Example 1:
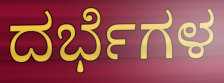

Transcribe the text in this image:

ದರ್ಭೆಗಳ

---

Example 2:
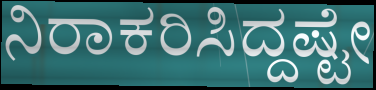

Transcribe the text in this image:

ನಿರಾಕರಿಸಿದ್ದಷ್ಟೇ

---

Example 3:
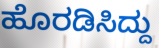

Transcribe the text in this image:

ಹೊರಡಿಸಿದ್ದು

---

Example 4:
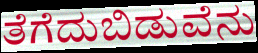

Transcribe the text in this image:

ತೆಗೆದುಬಿಡುವೆನು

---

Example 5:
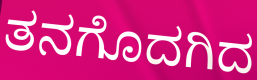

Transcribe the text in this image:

ತನಗೊದಗಿದ